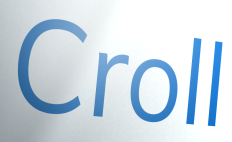
Croll